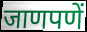
जाणपणें